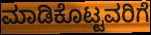
ಮಾಡಿಕೊಟ್ಟವರಿಗೆ